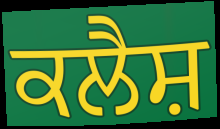
ਕਲੈਸ਼